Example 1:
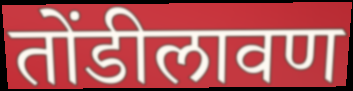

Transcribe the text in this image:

तोंडीलावण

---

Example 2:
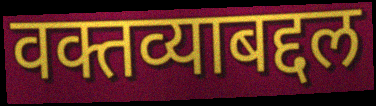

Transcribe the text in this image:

वक्तव्याबद्दल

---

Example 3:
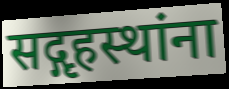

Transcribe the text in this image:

सद्गृहस्थांना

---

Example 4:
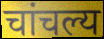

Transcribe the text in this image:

चांचल्य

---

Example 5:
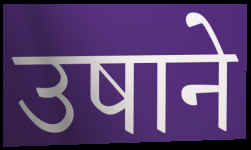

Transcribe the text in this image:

उषाने